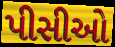
પીસીઓ